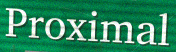
Proximal